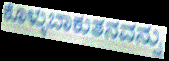
ಕೊಳ್ಳುಬಾಕುತನವನ್ನು